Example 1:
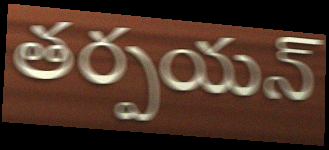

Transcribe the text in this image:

తర్పయన్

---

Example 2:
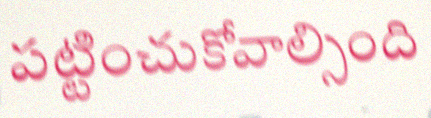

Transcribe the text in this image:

పట్టించుకోవాల్సింది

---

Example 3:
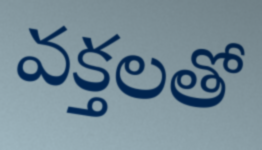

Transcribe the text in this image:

వక్తలతో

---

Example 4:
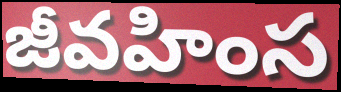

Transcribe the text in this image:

జీవహింస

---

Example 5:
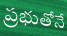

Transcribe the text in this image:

ప్రభుతోనే